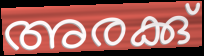
അരക്കു്